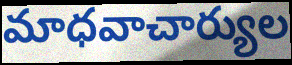
మాధవాచార్యుల